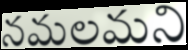
నమలమని